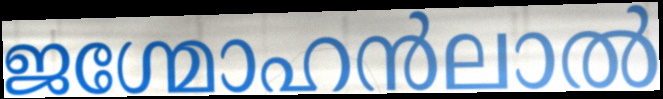
ജഗ്മോഹൻലാൽ